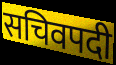
सचिवपदी